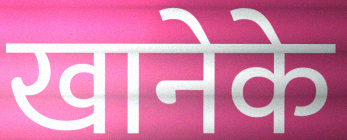
खानेके